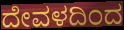
ದೇವಳದಿಂದ